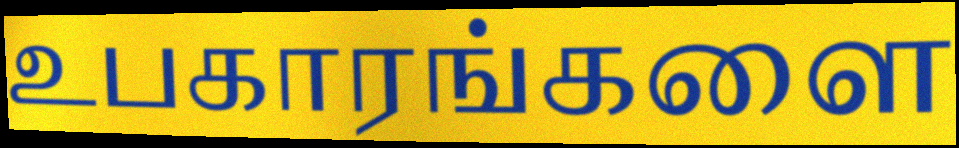
உபகாரங்களை